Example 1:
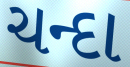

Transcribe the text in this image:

ચન્દા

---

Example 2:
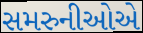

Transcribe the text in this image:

સમરુનીઓએ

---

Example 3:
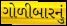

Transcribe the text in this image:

ગોળીબારનું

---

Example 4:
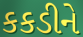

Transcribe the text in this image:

કકડીને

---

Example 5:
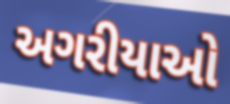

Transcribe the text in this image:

અગરીયાઓ